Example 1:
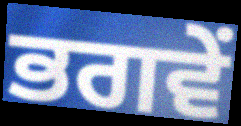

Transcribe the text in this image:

ਭਗਵੇਂ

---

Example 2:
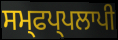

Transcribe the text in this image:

ਸਮ੍ਫਪ੍ਪਲਾਪੀ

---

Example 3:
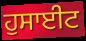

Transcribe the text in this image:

ਹੁਸਾਈਟ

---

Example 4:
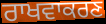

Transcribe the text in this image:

ਰਾਖਵਾਕਰਣ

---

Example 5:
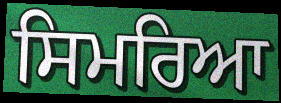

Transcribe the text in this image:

ਸਿਮਰਿਆ